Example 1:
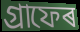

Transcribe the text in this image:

গ্ৰাফেৰ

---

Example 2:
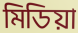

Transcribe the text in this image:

মিডিয়া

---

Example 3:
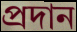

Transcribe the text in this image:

প্ৰদান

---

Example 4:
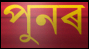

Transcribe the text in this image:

পুনৰ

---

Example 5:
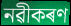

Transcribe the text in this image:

নৱীকৰণ